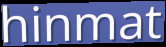
hinmat